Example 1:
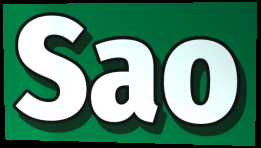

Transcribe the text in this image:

Sao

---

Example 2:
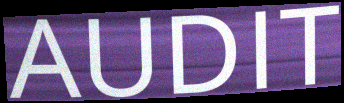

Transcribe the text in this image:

AUDIT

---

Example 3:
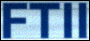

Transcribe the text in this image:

FTII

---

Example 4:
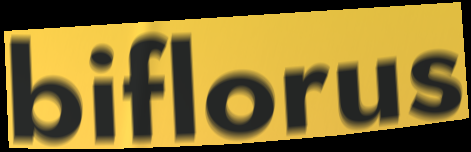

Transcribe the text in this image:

biflorus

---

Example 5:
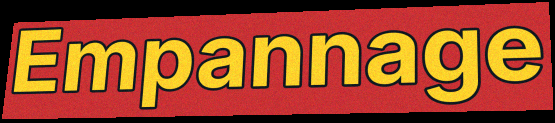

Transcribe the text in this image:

Empannage